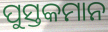
ପୁସ୍ତକମାନ